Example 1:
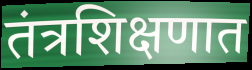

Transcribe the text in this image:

तंत्रशिक्षणात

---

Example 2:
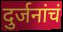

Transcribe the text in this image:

दुर्जनांचं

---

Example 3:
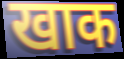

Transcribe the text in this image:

खाक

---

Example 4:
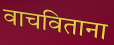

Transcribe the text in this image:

वाचविताना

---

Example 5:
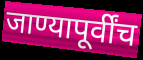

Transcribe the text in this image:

जाण्यापूर्वींच